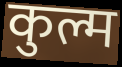
कुल्म